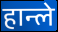
हान्ले